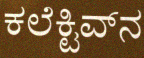
ಕಲೆಕ್ಟಿವ್‌ನ